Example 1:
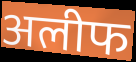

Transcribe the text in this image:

अलीफ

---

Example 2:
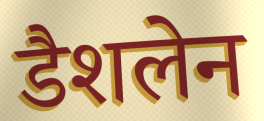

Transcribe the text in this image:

डैशलेन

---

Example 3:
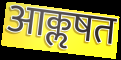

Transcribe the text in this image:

आकॢषत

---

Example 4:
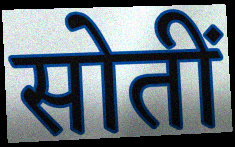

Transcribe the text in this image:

सोतीं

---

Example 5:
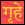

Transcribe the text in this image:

गृहे